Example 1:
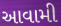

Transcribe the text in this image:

આવામી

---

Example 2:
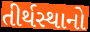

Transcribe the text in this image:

તીર્થસ્થાનો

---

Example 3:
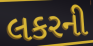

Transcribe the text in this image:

લકરની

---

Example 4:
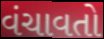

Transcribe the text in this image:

વંચાવતો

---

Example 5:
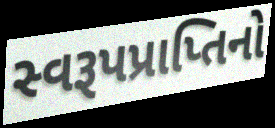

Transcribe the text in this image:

સ્વરૂપપ્રાપ્તિનો